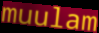
muulam